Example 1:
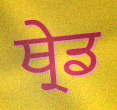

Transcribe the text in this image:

ਥ੍ਰੇਡ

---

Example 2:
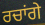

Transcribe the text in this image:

ਰਚਾਂਗੇ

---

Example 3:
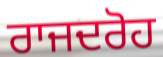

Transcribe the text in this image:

ਰਾਜਦਰੋਹ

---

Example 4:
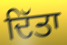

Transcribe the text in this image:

ਦਿੱਤਾ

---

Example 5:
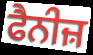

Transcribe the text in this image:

ਫੈਨੀਜ਼